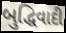
બુદ્ધિવાદી